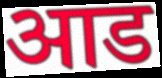
आड